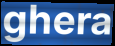
ghera